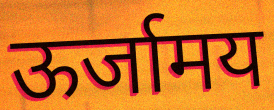
ऊर्जामय